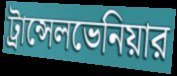
ট্রান্সেলভেনিয়ার